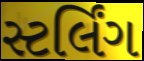
સ્ટર્લિંગ